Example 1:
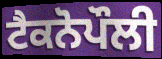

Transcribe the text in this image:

ਟੈਕਨੋਪੌਲੀ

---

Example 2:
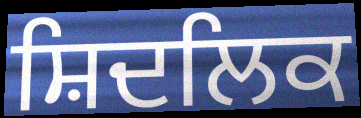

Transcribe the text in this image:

ਸ਼ਿਦਲਿਕ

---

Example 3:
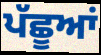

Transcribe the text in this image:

ਪੱਛੂਆਂ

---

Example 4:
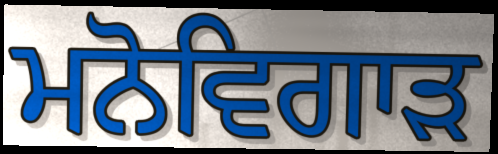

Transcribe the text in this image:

ਮਨੋਵਿਗਾੜ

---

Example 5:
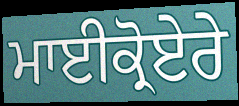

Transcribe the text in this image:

ਮਾਈਕ੍ਰੋਏਰੇ